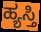
ಹ್ಯಸ್ತಿ